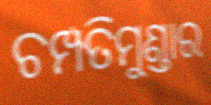
ଚମ୍ପତିମୁଣ୍ଡାର